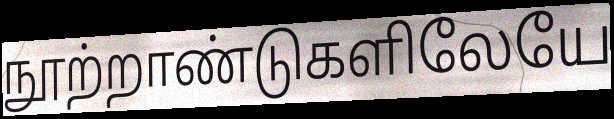
நூற்றாண்டுகளிலேயே